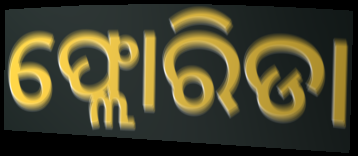
ଫ୍ଲୋରିଡା